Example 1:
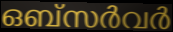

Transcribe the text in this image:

ഒബ്സർവർ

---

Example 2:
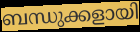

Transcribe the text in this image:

ബന്ധുക്കളായി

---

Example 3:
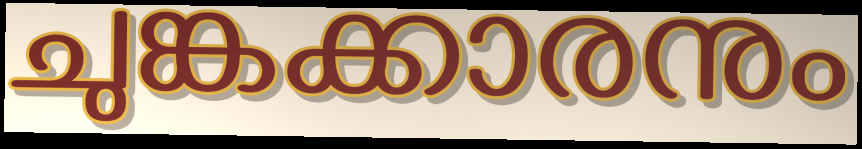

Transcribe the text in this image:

ചുങ്കക്കാരനും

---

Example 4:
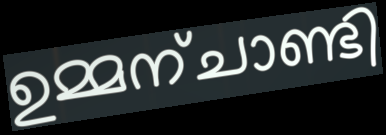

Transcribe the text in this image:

ഉമ്മന്ചാണ്ടി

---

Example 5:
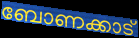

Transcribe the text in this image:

ബോണക്കാട്